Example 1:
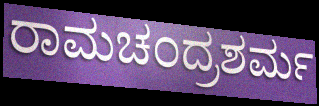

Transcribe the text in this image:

ರಾಮಚಂದ್ರಶರ್ಮ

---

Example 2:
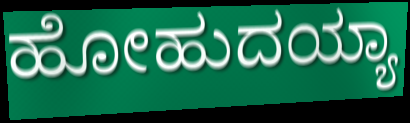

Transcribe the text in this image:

ಹೋಹುದಯ್ಯಾ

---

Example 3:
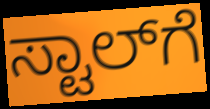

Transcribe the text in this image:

ಸ್ಟಾಲ್‌ಗೆ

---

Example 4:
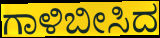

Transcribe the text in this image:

ಗಾಳಿಬೀಸಿದ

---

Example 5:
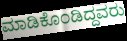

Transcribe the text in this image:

ಮಾಡಿಕೊಂಡಿದ್ದವರು